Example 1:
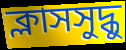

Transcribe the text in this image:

ক্লাসসুদ্ধু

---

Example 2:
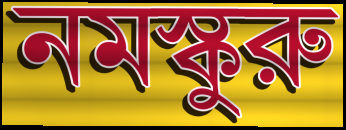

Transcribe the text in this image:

নমস্কুরু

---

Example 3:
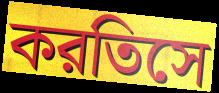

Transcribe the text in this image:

করতিসে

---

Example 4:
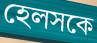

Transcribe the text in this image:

হেলসকে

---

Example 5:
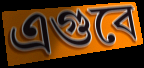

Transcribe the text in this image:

এগুবে